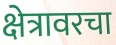
क्षेत्रावरचा